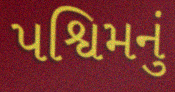
પશ્વિમનું